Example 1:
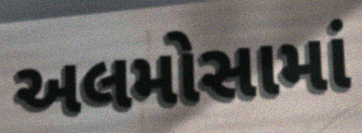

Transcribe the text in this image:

અલમોસામાં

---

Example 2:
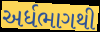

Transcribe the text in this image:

અર્ધભાગથી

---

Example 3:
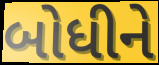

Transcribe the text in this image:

બોધીને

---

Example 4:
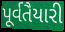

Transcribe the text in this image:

પૂર્વતૈયારી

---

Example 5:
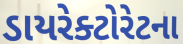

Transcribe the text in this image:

ડાયરેક્ટોરેટના